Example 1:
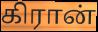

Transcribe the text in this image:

கிரான்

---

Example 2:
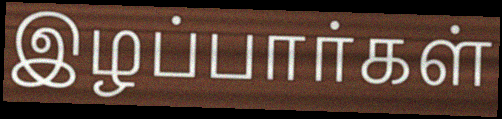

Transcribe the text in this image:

இழப்பார்கள்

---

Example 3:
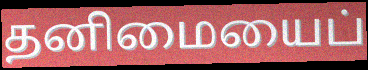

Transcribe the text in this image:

தனிமையைப்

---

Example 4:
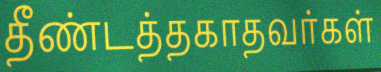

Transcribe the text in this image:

தீண்டத்தகாதவர்கள்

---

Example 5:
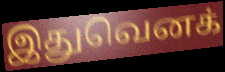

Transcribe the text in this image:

இதுவெனக்